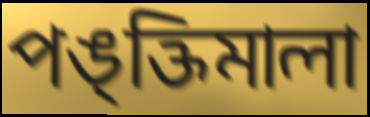
পঙ্‌ক্তিমালা